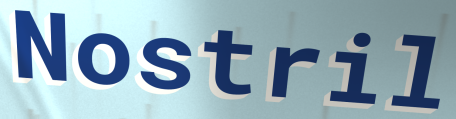
Nostril